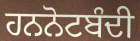
ਹਨਨੋਟਬੰਦੀ